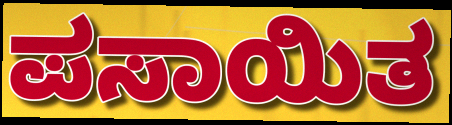
ಪಸಾಯಿತ